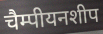
चैम्पीयनशीप